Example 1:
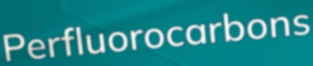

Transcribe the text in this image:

Perfluorocarbons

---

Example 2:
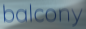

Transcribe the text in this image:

balcony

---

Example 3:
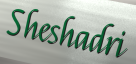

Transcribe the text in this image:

Sheshadri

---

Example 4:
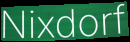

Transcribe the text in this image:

Nixdorf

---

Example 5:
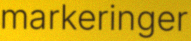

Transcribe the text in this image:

markeringer